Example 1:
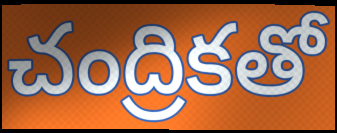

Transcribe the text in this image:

చంద్రికతో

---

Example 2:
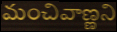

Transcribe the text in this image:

మంచివాణ్ణని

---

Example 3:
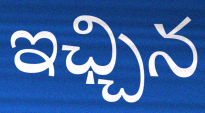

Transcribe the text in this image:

ఇఛ్చిన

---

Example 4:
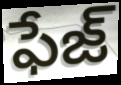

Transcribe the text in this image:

ఫేజ్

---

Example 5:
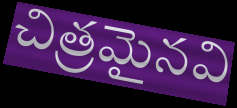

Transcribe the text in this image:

చిత్రమైనవి